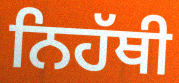
ਨਿਹੱਥੀ